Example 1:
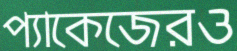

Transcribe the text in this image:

প্যাকেজেরও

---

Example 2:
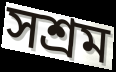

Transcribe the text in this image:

সশ্রম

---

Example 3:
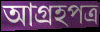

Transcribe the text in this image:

আগ্রহপত্র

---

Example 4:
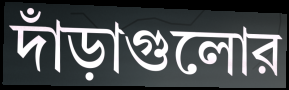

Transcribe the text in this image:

দাঁড়াগুলোর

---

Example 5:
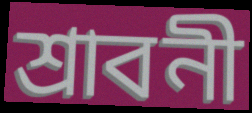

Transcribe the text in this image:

শ্রাবনী